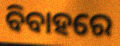
ବିବାହରେ